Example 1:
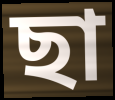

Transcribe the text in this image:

ছা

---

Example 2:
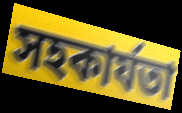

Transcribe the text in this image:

সহকাৰ্যতা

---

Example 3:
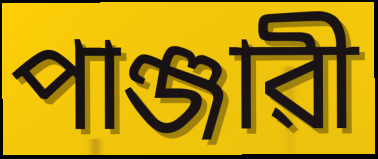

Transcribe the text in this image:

পাঞ্জাৱী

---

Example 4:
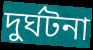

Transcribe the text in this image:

দুৰ্ঘটনা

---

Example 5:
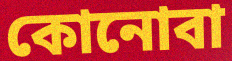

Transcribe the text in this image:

কোনোবা